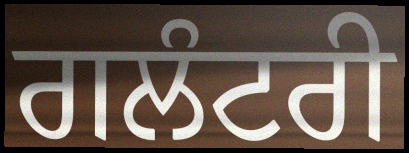
ਗਲੰਟਰੀ